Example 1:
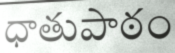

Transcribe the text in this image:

ధాతుపాఠం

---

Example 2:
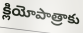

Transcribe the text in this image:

క్లియోపాత్రాకు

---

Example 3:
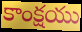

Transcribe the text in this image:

కాంక్షయు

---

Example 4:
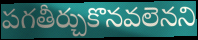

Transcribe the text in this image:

పగతీర్చుకొనవలెనని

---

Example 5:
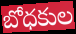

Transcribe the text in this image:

బోధకుల